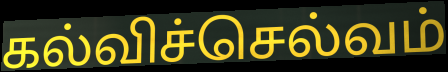
கல்விச்செல்வம்